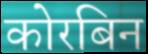
कोरबिन